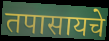
तपासायचे